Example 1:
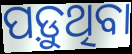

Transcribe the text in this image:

ପଡ଼ୁଥିବା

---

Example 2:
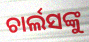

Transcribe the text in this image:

ଚାର୍ଲସଙ୍କୁ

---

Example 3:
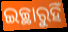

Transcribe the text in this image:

ଇଚ୍ଛାରୁହିଁ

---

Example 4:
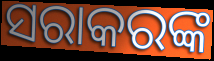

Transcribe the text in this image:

ସରାକରଙ୍କ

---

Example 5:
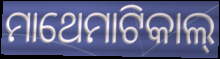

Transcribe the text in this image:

ମାଥେମାଟିକାଲ୍